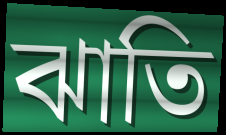
ঝাতি